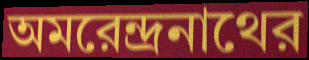
অমরেন্দ্রনাথের